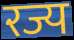
रज्य